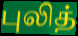
புலித்